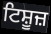
ਟਿਸ਼ੂਜ਼